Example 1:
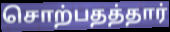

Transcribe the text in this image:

சொற்பதத்தார்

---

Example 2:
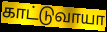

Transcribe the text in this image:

காட்டுவாயா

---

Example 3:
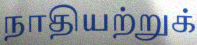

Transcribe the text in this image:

நாதியற்றுக்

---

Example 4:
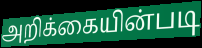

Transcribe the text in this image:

அறிக்கையின்படி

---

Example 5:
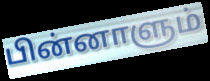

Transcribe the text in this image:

பின்னாளும்